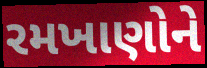
રમખાણોને